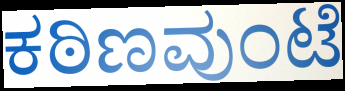
ಕಠಿಣವುಂಟೆ